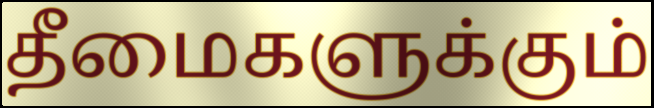
தீமைகளுக்கும்